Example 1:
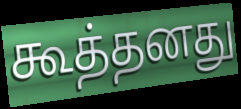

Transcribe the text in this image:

கூத்தனது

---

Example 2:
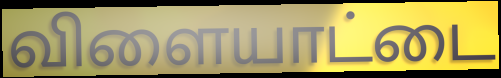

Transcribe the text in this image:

விளையாட்டை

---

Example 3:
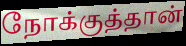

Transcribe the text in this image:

நோக்குத்தான்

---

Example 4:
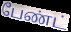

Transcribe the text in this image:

பேண்ட்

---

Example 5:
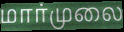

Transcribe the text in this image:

மார்முலை